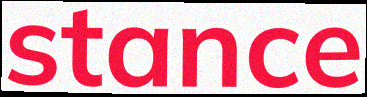
stance